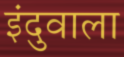
इंदुवाला